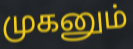
முகனும்